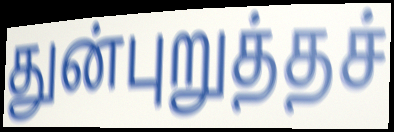
துன்புறுத்தச்